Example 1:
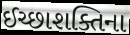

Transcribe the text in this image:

ઈચ્છાશક્તિના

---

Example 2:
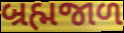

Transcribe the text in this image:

બ્રહ્મજાળ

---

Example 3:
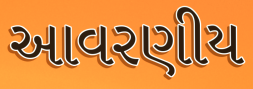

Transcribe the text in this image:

આવરણીય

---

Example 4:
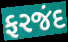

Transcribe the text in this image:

ફરજંદ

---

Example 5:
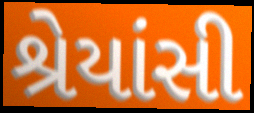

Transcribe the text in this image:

શ્રેયાંસી